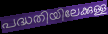
പദ്ധതിയിലേക്കുള്ള